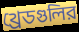
থ্রেডগুলির